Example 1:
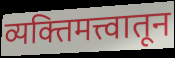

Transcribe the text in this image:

व्यक्तिमत्त्वातून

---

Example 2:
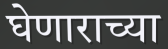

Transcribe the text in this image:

घेणाराच्या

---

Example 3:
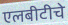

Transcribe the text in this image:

एलबीटीचे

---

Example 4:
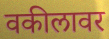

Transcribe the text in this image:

वकीलावर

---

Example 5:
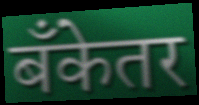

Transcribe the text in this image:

बँकेतर